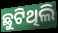
ଛୁଟିଥିଲି